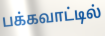
பக்கவாட்டில்